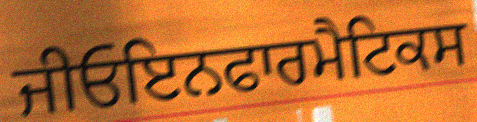
ਜੀਓਇਨਫਾਰਮੈਟਿਕਸ